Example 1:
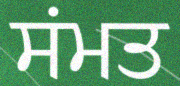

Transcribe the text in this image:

ਸਂਮਤ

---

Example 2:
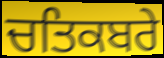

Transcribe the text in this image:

ਚਤਿਕਬਰੇ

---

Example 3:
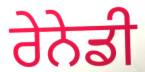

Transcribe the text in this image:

ਰੇਨੇਡੀ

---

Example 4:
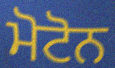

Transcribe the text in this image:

ਮੋਟੋਨ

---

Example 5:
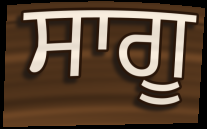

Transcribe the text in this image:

ਸਾਗੂ